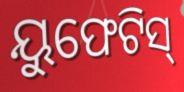
ୟୁଫେଟିସ୍